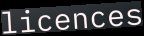
licences